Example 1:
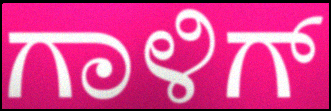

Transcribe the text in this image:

ಗಾಳಿಗ್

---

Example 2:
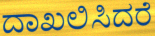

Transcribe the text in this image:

ದಾಖಲಿಸಿದರೆ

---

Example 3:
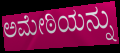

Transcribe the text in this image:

ಅಮೇಠಿಯನ್ನು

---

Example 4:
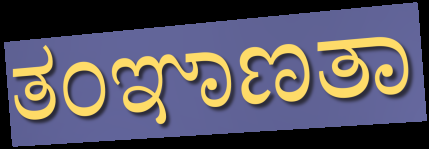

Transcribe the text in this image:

ತಂಞಾಣತಾ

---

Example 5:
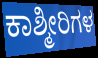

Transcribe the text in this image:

ಕಾಶ್ಮೀರಿಗಳ